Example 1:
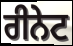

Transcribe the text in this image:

ਰੀਨੇਟ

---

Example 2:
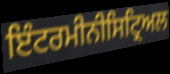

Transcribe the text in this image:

ਇੰਟਰਮੀਨੀਸਿਟ੍ਰਿਅਲ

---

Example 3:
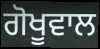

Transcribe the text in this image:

ਗੋਖੂਵਾਲ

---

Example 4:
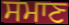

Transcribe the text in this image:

ਸਮਾਣ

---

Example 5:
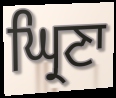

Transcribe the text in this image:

ਘ੍ਰਿਣਾ